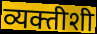
व्यक्‍तीशी